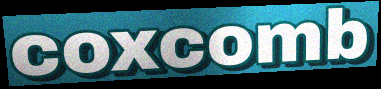
coxcomb